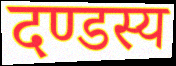
दण्डस्य